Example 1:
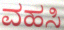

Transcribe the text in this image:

ವಹಸಿ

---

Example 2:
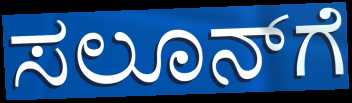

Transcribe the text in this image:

ಸಲೂನ್‍ಗೆ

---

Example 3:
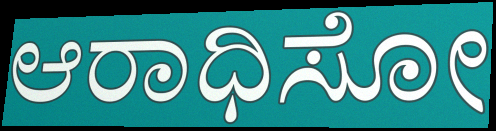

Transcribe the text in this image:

ಆರಾಧಿಸೋ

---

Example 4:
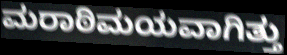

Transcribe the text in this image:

ಮರಾಠಿಮಯವಾಗಿತ್ತು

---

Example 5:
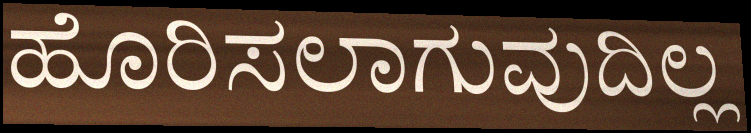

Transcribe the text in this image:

ಹೊರಿಸಲಾಗುವುದಿಲ್ಲ